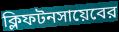
ক্লিফটনসায়েবের